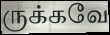
ருக்கவே